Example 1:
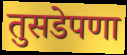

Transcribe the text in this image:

तुसडेपणा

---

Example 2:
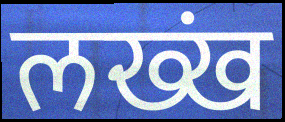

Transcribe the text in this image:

लख्खं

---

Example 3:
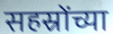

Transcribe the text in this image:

सहस्रोंच्या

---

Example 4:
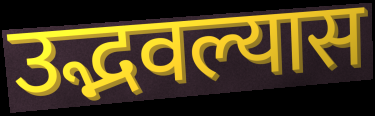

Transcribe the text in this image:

उद्भवल्यास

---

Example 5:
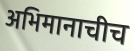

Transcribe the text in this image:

अभिमानाचीच